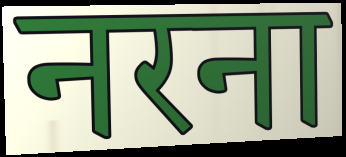
नरना